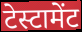
टेस्टामेंट